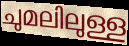
ചുമലിലുള്ള